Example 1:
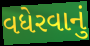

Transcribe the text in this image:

વધેરવાનું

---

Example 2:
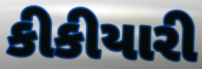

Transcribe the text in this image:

કીકીયારી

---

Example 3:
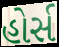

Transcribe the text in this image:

હોર્સ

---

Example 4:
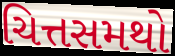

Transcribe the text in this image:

ચિત્તસમથો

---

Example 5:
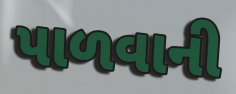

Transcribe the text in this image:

પાળવાની